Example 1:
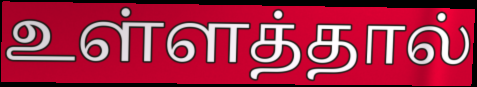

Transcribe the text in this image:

உள்ளத்தால்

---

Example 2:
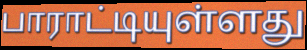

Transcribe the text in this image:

பாராட்டியுள்ளது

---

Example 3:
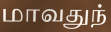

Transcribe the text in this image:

மாவதுந்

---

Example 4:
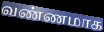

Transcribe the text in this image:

வண்ணமாக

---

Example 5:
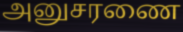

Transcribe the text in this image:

அனுசரணை